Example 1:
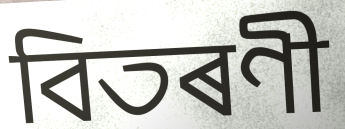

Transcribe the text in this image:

বিতৰণী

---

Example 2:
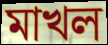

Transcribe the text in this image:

মাখল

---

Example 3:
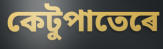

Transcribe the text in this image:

কেটুপাতেৰে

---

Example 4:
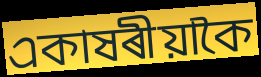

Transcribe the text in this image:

একাষৰীয়াকৈ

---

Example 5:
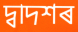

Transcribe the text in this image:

দ্বাদশৰ